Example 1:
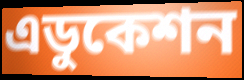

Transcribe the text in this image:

এডুকেশন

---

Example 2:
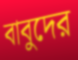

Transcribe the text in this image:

বাবুদের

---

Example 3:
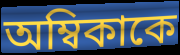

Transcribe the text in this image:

অম্বিকাকে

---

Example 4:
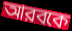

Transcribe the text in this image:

আরবকে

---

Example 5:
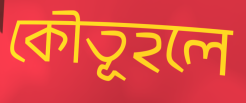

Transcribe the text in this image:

কৌতূহলে